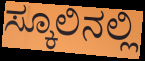
ಸ್ಕೂಲಿನಲ್ಲಿ